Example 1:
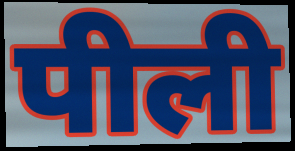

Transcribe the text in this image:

पीली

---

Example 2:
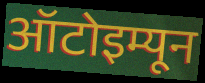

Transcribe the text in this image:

ऑटोइम्यून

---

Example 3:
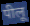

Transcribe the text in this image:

पीलू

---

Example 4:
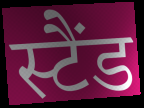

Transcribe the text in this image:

स्टैंड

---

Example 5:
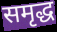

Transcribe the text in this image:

समृद्ध